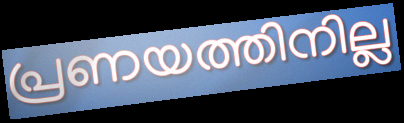
പ്രണയത്തിനില്ല